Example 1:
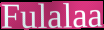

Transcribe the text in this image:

Fulalaa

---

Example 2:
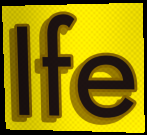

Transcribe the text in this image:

Ife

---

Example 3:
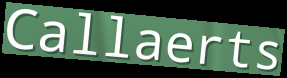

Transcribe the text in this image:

Callaerts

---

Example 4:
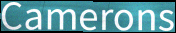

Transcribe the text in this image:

Camerons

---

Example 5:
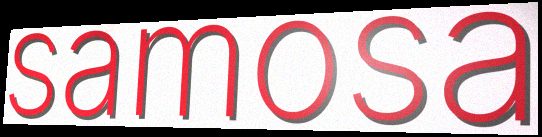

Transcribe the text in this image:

samosa